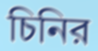
চিনির